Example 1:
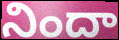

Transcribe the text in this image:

నిందా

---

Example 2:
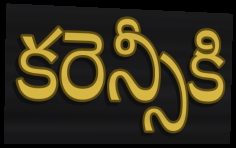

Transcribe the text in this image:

కరెన్సీకి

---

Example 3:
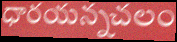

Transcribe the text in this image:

ధారయన్నచలం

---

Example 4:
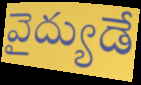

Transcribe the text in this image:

వైద్యుడే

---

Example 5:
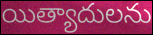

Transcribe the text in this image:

యిత్యాదులను